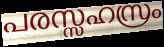
പരസ്സഹസ്രം